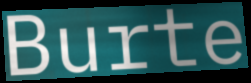
Burte